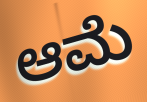
ಆಮೆ